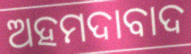
ଅହମଦାବାଦ